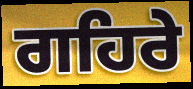
ਗਹਿਰੇ